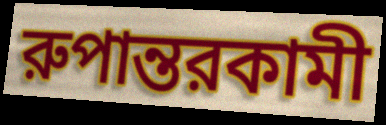
রুপান্তরকামী